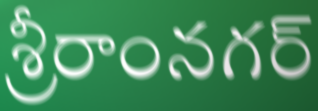
శ్రీరాంనగర్